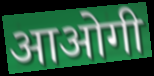
आओगी